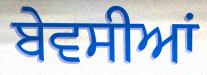
ਬੇਵਸੀਆਂ